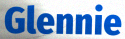
Glennie